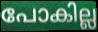
പോകില്ല